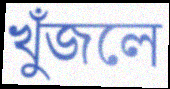
খুঁজলে